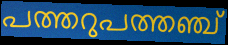
പത്തറുപത്തഞ്ച്